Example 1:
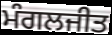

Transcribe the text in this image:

ਮੰਗਲਜੀਤ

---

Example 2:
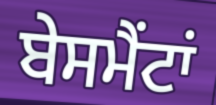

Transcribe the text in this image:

ਬੇਸਮੈਂਟਾਂ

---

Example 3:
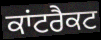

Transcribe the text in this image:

ਕਾਂਟਰੈਕਟ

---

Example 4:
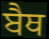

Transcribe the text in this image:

ਬੈਥ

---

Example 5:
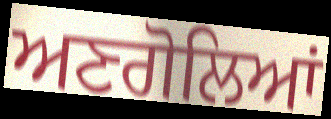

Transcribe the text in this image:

ਅਣਗੋਲਿਆਂ